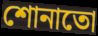
শোনাতো